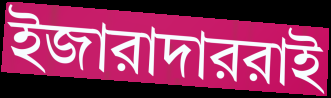
ইজারাদাররাই